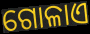
ଗୋଳାଏ